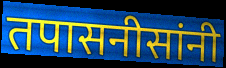
तपासनीसांनी